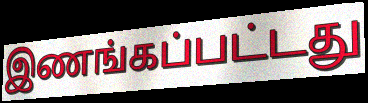
இணங்கப்பட்டது